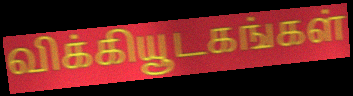
விக்கியூடகங்கள்